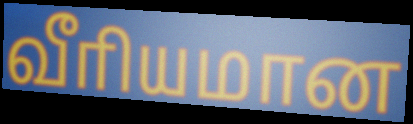
வீரியமான